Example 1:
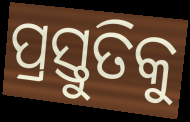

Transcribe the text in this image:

ପ୍ରସ୍ତୁତିକୁ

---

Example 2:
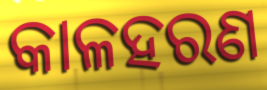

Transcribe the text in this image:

କାଳହରଣ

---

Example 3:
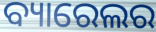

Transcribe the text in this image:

ବ୍ୟାରେଲର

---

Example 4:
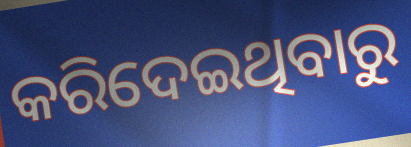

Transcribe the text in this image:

କରିଦେଇଥିବାରୁ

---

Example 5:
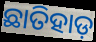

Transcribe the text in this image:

ଛାତିହାଡ଼